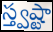
స్త్వష్టా